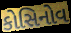
કોસિનોવ